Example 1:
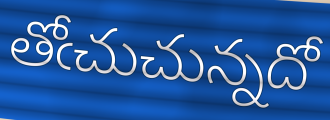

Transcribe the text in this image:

తోఁచుచున్నదో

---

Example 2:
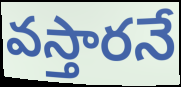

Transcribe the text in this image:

వస్తారనే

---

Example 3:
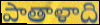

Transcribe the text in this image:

పాతాళాది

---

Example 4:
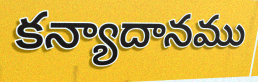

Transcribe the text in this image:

కన్యాదానము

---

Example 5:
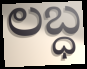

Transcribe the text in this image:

లబ్ధ